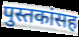
पुस्तकांसह